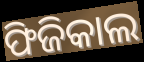
ଫିଜିକାଲ